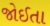
જોઈતા